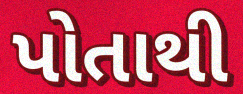
પોતાથી